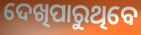
ଦେଖିପାରୁଥିବେ